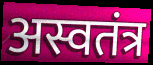
अस्वतंत्र